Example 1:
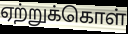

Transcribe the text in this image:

ஏற்றுக்கொள்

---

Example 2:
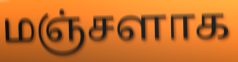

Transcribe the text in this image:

மஞ்சளாக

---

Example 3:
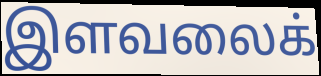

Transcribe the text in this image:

இளவலைக்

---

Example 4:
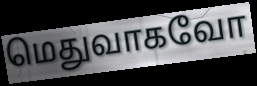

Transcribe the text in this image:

மெதுவாகவோ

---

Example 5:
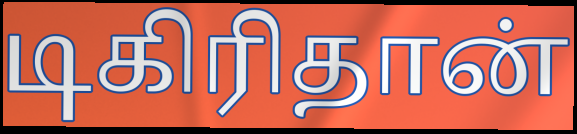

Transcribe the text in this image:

டிகிரிதான்